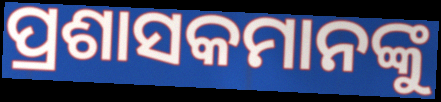
ପ୍ରଶାସକମାନଙ୍କୁ